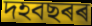
দহবছৰৰ